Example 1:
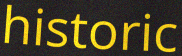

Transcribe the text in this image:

historic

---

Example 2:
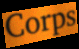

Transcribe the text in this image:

Corps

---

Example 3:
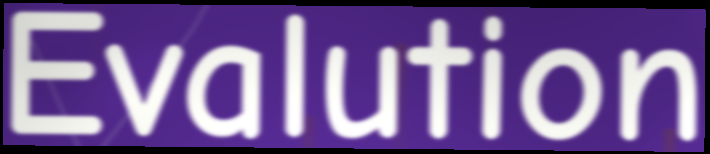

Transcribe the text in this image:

Evalution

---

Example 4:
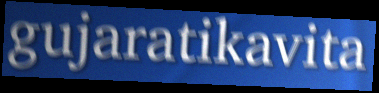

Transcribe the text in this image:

gujaratikavita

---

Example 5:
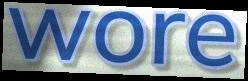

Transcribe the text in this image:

wore